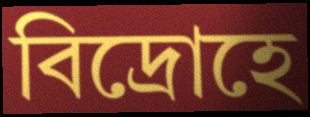
বিদ্ৰোহে